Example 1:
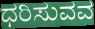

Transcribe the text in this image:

ಧರಿಸುವವ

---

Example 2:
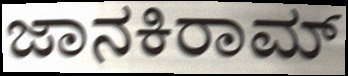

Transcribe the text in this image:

ಜಾನಕಿರಾಮ್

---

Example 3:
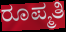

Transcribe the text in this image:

ರೂಪ್ಮತಿ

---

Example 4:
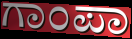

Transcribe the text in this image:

ಗಾಂಪಾ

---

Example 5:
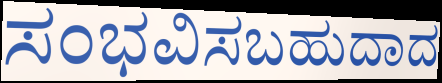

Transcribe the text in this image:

ಸಂಭವಿಸಬಹುದಾದ